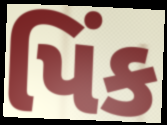
પિંક